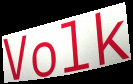
Volk